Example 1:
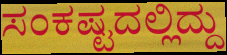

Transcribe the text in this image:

ಸಂಕಷ್ಟದಲ್ಲಿದ್ದು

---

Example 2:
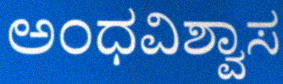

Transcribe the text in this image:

ಅಂಧವಿಶ್ವಾಸ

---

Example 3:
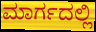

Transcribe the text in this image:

ಮಾರ್ಗದಲ್ಲಿ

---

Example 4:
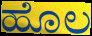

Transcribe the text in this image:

ಹೊಲ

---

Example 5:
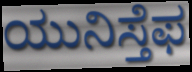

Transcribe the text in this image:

ಯುನಿಸ್ತೆಫ